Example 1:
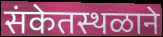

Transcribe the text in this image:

संकेतस्थळाने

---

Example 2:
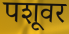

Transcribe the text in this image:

पशूवर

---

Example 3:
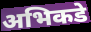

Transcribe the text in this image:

अभिकडे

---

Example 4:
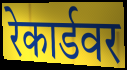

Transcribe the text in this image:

रेकार्डवर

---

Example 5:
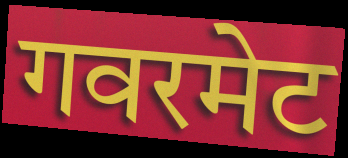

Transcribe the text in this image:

गवरमेट